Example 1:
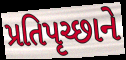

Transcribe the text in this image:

પ્રતિપૃચ્છાને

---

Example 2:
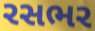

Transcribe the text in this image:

રસભર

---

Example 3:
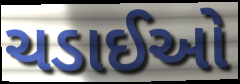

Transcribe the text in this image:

ચડાઈઓ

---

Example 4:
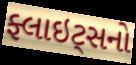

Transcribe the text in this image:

ફ્લાઇટ્સનો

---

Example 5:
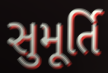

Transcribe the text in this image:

સુમૂર્તિ